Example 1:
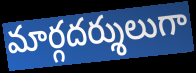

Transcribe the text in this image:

మార్గదర్శులుగా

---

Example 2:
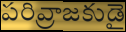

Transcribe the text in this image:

పరివ్రాజకుడై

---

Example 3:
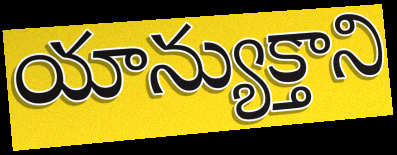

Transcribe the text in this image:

యాన్యుక్తాని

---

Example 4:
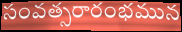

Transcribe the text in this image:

సంవత్సరారంభమున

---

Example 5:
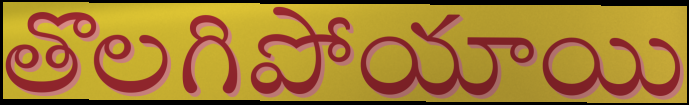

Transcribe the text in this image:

తొలగిపోయాయి